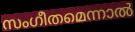
സംഗീതമെന്നാൽ